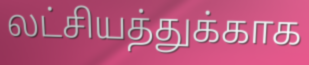
லட்சியத்துக்காக